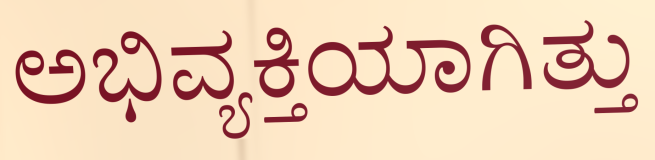
ಅಭಿವ್ಯಕ್ತಿಯಾಗಿತ್ತು